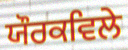
ਯੌਰਕਵਿਲੇ